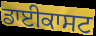
ਡਾਈਕਾਸਟ